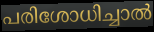
പരിശോധിച്ചാൽ